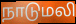
நாடுமலி